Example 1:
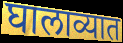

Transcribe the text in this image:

घालाव्यात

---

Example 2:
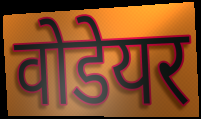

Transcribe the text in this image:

वोडेयर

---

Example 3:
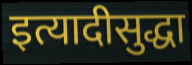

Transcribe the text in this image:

इत्यादीसुद्धा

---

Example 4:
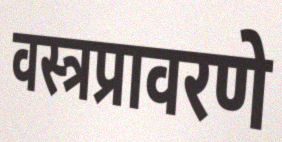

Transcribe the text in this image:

वस्त्रप्रावरणे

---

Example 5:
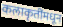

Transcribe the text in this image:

कलाकृतींमधून